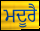
ਮਦੂਰੈ